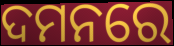
ଦମନରେ